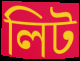
লিট